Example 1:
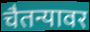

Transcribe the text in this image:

चैतन्यावर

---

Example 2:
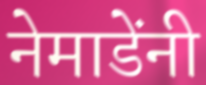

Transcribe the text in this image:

नेमाडेंनी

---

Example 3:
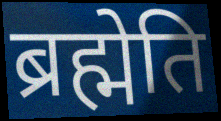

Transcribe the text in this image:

ब्रह्मेति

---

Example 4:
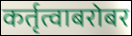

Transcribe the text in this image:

कर्तृत्वाबरोबर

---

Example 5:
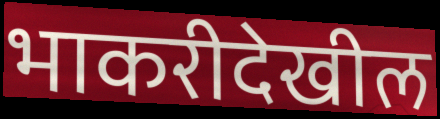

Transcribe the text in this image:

भाकरीदेखील